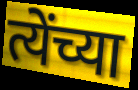
त्येंच्या